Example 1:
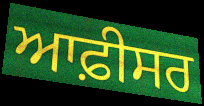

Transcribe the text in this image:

ਆਫ਼ੀਸਰ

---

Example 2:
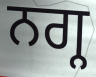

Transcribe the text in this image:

ਨਗ੍ਨ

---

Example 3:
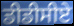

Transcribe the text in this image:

ਡੀਡੀਸੀਏ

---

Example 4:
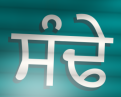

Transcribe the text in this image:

ਸੰਢੇ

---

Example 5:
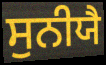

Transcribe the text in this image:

ਸੁਨੀਯੈ